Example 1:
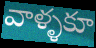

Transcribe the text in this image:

వాళ్ళకూ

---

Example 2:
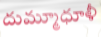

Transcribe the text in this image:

దుమ్మూధూళీ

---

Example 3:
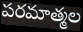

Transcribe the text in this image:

పరమాత్మల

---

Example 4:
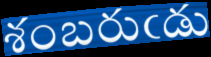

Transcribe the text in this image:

శంబరుఁడు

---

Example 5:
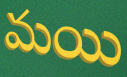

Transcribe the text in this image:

మయి